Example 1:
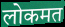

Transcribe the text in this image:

लोकमत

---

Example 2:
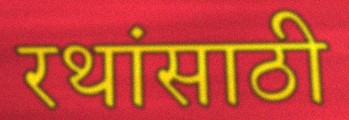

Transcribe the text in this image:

रथांसाठी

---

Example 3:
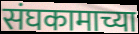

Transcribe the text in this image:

संघकामाच्या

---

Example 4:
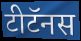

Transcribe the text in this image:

टीटॅनस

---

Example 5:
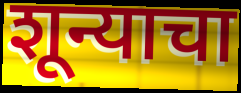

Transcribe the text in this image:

शून्याचा